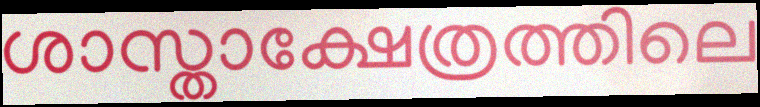
ശാസ്താക്ഷേത്രത്തിലെ